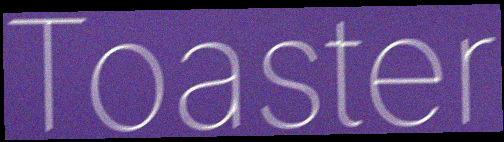
Toaster